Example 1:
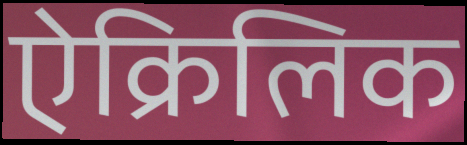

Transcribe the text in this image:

ऐक्रिलिक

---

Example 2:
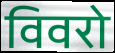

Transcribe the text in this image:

विवरो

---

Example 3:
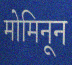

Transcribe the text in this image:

मोमिनून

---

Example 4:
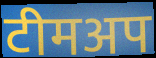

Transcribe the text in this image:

टीमअप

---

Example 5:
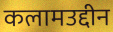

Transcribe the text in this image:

कलामउद्दीन